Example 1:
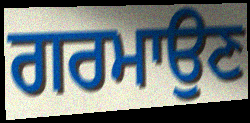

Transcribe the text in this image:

ਗਰਮਾਉਣ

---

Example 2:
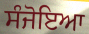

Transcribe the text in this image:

ਸੰਜੋਇਆ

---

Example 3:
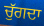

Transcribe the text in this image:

ਚੁੱਗਦਾ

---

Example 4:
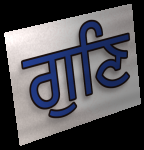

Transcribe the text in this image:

ਗੁਣਿ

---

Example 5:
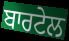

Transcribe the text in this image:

ਬਾਰਟੇਲ